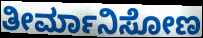
ತೀರ್ಮಾನಿಸೋಣ